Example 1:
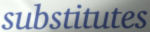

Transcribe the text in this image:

substitutes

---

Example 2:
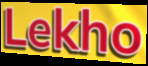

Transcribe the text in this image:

Lekho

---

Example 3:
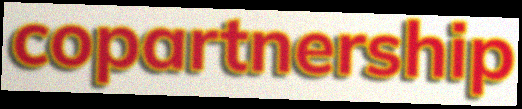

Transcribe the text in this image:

copartnership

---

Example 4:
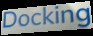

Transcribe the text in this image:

Docking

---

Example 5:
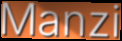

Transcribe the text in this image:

Manzi